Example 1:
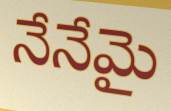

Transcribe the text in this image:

నేనేమై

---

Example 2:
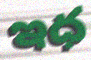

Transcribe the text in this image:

ఇధ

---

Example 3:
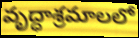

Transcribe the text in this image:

వృద్ధాశ్రమాలలో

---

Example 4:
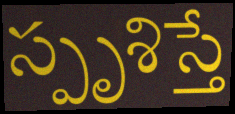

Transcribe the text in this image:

స్పృశిస్తే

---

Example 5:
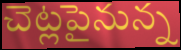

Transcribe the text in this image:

చెట్లపైనున్న